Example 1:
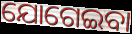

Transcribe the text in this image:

ଯୋଗେଇବା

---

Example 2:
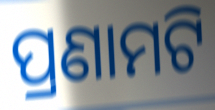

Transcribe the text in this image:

ପ୍ରଣାମଟି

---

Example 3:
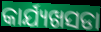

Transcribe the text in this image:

କାର୍ଯ୍ୟଖସଡା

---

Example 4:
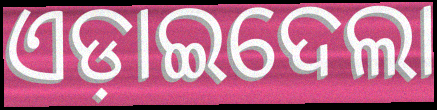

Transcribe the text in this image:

ଏଡ଼ାଇଦେଲା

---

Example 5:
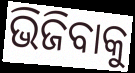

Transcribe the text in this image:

ଭିଜିବାକୁ